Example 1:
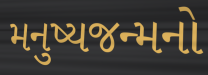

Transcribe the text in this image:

મનુષ્યજન્મનો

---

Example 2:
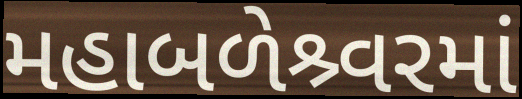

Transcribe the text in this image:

મહાબળેશ્ર્વરમાં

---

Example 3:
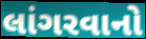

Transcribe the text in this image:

લાંગરવાનો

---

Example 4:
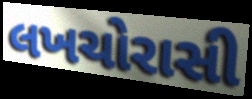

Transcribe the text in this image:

લખચોરાસી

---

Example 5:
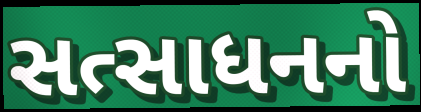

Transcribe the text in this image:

સત્સાધનનો